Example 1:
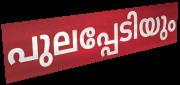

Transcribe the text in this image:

പുലപ്പേടിയും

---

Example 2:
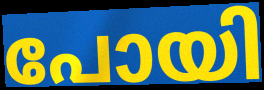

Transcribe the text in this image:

പോയി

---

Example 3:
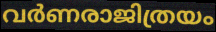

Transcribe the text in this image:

വർണരാജിത്രയം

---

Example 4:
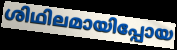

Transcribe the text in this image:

ശിഥിലമായിപ്പോയ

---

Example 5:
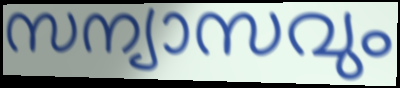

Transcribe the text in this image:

സന്യാസവും